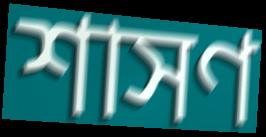
শাসণ